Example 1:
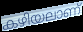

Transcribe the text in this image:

കഴിയലാണ്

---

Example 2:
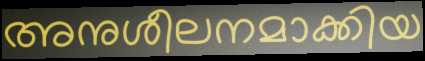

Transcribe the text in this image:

അനുശീലനമാക്കിയ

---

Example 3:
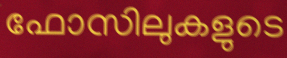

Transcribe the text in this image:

ഫോസിലുകളുടെ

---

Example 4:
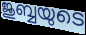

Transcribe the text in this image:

ജുബ്ബയുടെ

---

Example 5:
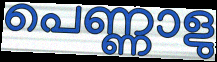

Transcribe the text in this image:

പെണ്ണാളു